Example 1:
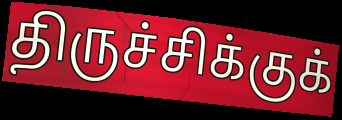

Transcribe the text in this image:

திருச்சிக்குக்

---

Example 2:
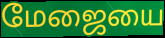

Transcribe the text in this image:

மேஜையை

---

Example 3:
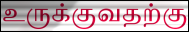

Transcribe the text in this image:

உருக்குவதற்கு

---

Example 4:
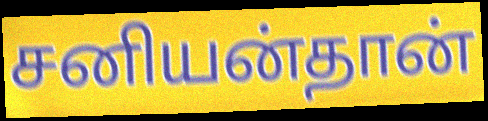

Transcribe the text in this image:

சனியன்தான்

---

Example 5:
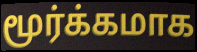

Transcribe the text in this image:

மூர்க்கமாக